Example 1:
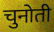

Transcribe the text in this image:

चुनोती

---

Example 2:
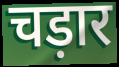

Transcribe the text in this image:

चड़ार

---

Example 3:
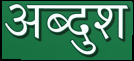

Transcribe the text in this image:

अब्दुश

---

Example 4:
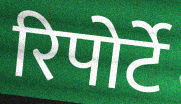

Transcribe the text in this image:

रिपोर्टे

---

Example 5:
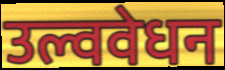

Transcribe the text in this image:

उल्ववेधन